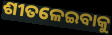
ଶୀତଳେଇବାକୁ